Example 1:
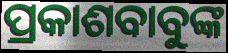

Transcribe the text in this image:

ପ୍ରକାଶବାବୁଙ୍କ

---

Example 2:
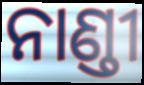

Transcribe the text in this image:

ନାଣ୍ଡୀ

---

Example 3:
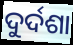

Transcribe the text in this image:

ଦୁର୍ଦଶା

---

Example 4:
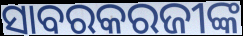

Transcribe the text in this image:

ସାବରକରଜୀଙ୍କ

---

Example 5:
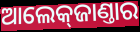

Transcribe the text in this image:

ଆଲେକ୍‌ଜାଣ୍ତାର